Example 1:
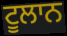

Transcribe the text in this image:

ਟੂਲਾਨ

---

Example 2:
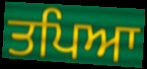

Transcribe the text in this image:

ਤਪਿਆ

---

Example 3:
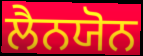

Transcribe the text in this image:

ਲੈਨਯੋਨ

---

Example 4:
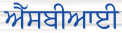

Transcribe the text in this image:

ਐੱਸਬੀਆਈ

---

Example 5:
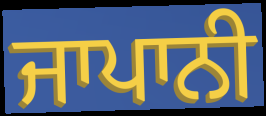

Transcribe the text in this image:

ਜਾਪਾਨੀ